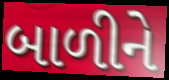
બાળીને